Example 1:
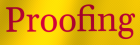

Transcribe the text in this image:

Proofing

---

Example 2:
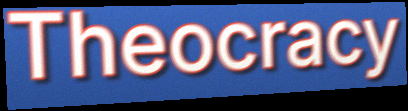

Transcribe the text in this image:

Theocracy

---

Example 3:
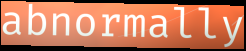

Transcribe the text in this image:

abnormally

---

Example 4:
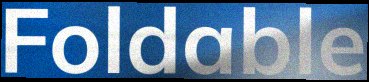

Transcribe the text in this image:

Foldable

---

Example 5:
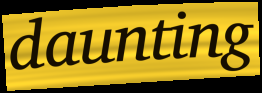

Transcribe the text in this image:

daunting